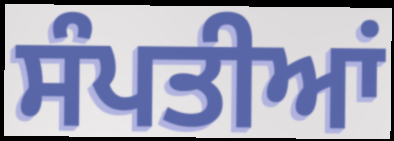
ਸੰਪਤੀਆਂ